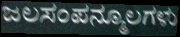
ಜಲಸಂಪನ್ಮೂಲಗಳು